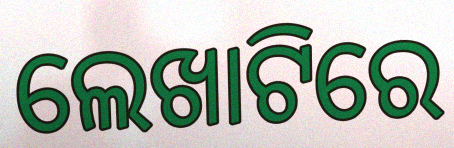
ଲେଖାଟିରେ